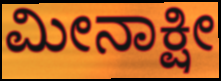
ಮೀನಾಕ್ಷೀ